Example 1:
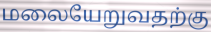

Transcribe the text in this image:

மலையேறுவதற்கு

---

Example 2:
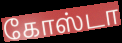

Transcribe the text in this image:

கோஸ்டா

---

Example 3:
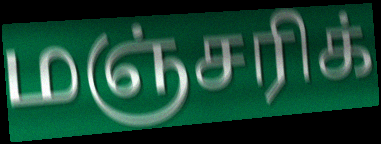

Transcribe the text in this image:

மஞ்சரிக்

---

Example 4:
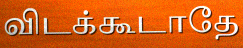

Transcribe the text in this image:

விடக்கூடாதே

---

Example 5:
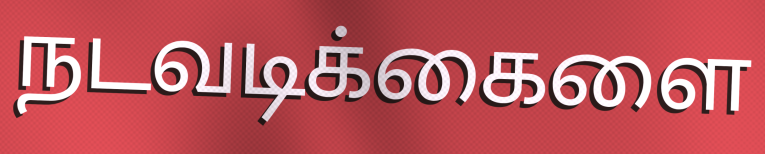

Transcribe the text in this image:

நடவடிக்கைளை